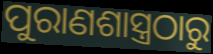
ପୁରାଣଶାସ୍ତ୍ରଠାରୁ